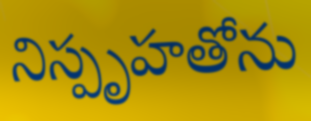
నిస్పృహతోను